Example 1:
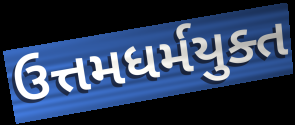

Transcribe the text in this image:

ઉત્તમધર્મયુક્ત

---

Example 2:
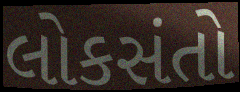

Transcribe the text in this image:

લોકસંતો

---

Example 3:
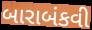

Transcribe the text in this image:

બારાબંકવી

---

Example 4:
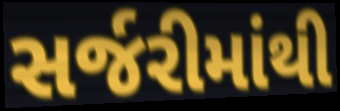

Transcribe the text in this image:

સર્જરીમાંથી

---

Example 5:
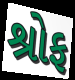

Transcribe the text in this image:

શ્રોફ